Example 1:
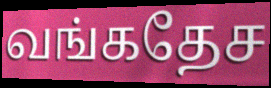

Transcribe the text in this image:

வங்கதேச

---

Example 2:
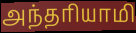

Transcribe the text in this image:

அந்தரியாமி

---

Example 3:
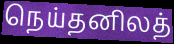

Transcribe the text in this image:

நெய்தனிலத்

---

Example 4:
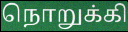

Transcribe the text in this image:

நொறுக்கி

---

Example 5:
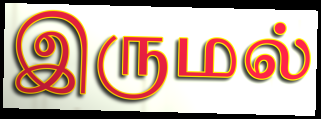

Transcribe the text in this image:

இருமல்